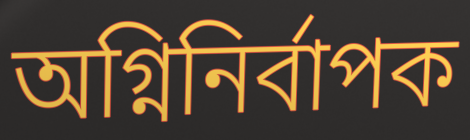
অগ্নিনির্বাপক